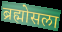
ब्रह्मोसला